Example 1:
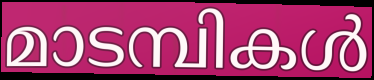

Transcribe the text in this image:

മാടമ്പികൾ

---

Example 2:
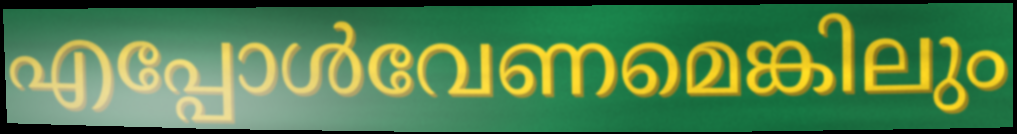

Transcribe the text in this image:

എപ്പോൾവേണമെങ്കിലും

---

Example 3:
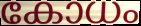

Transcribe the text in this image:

കോധം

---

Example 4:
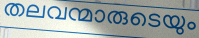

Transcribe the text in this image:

തലവന്മാരുടെയും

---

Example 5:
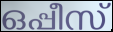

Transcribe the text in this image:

ഒപ്പീസ്